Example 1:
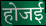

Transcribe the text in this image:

होजई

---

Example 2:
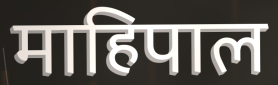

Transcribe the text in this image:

माहिपाल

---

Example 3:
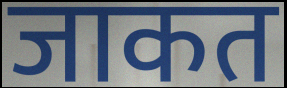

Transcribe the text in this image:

जाकत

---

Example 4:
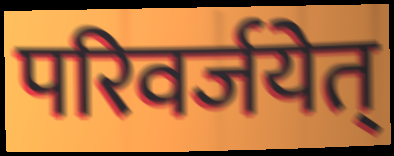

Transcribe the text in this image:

परिवर्जयेत्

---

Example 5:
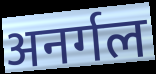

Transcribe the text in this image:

अनर्गल